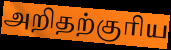
அறிதற்குரிய